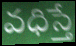
వధిస్తే